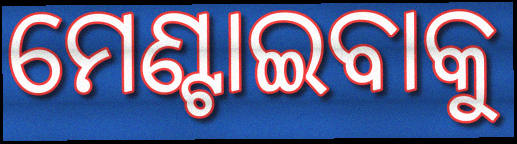
ମେଣ୍ଟାଇବାକୁ